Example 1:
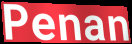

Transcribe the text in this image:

Penan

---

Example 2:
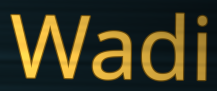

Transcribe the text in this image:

Wadi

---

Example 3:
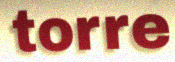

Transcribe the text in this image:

torre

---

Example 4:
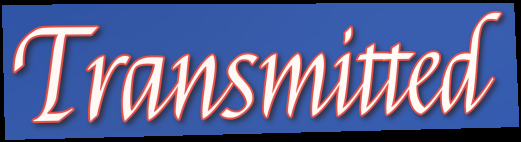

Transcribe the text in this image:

Transmitted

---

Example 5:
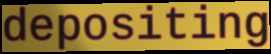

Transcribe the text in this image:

depositing